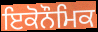
ਇਕੋਨੌਮਿਕ